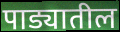
पाड्यातील